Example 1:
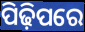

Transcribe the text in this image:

ପିଢ଼ିପରେ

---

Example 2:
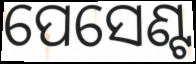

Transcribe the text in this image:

ପେସେଣ୍ଟ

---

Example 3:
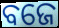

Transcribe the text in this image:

ବଜେ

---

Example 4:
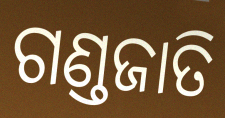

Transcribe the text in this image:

ଗଣ୍ଡଜାତି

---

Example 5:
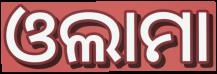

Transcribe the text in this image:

ଓଲାମା